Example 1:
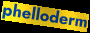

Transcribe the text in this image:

phelloderm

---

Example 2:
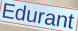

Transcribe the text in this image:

Edurant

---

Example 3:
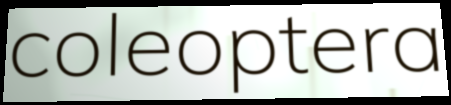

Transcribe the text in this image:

coleoptera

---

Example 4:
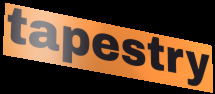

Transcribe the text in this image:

tapestry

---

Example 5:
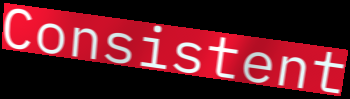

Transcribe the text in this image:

Consistent